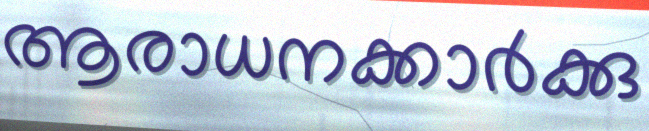
ആരാധനക്കാർക്കു